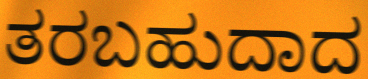
ತರಬಹುದಾದ